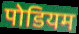
पोडियम